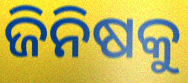
ଜିନିଷକୁ